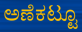
ಅಣೆಕಟ್ಟೂ